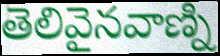
తెలివైనవాణ్ని